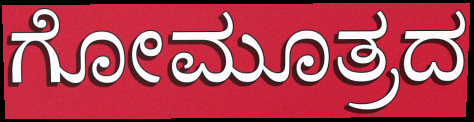
ಗೋಮೂತ್ರದ